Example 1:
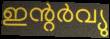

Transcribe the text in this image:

ഇന്റർവ്യു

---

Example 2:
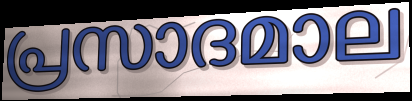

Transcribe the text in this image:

പ്രസാദമാല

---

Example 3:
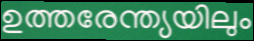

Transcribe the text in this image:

ഉത്തരേന്ത്യയിലും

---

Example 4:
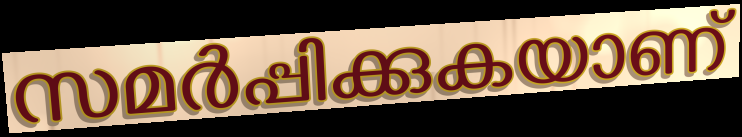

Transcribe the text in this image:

സമർപ്പിക്കുകയാണ്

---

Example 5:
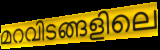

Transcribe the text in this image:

മറവിടങ്ങളിലെ